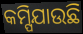
କମ୍ପିଯାଉଛି